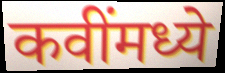
कवींमध्ये